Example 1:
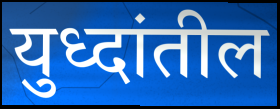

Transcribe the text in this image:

युध्दांतील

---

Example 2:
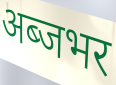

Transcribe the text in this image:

अब्जभर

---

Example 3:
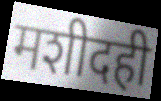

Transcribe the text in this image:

मशीदही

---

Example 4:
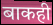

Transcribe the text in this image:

बाकही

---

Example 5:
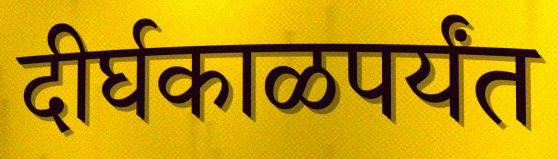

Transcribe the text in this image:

दीर्घकाळपर्यंत